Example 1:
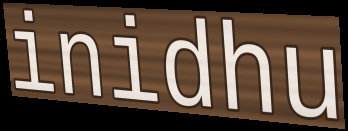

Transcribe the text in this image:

inidhu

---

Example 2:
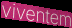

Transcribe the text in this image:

viventem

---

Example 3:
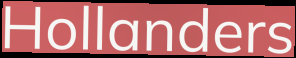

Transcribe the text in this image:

Hollanders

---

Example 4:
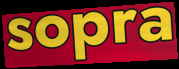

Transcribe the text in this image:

sopra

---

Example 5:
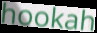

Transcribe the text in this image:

hookah